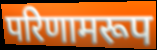
परिणामरूप